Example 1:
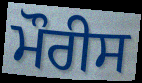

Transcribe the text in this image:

ਮੌਰੀਸ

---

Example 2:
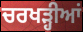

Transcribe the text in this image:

ਚਰਖੜ੍ਹੀਆਂ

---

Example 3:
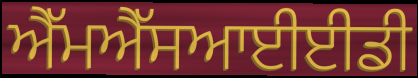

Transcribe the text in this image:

ਐੱਮਐੱਸਆਈਈਡੀ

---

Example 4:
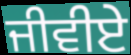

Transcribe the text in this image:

ਜੀਵੀਏ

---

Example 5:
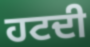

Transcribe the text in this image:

ਹਟਦੀ